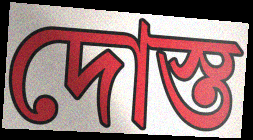
দোস্ত